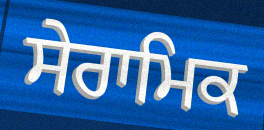
ਸੇਰਾਮਿਕ